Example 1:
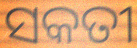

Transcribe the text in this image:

ସକତୀ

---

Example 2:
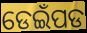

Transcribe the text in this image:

ଡେଇଁପଡ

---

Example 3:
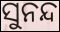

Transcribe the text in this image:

ସୁନନ୍ଦ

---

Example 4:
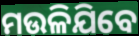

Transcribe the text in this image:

ମଉଳିଯିବେ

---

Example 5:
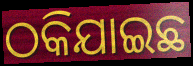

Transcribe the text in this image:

ଠକିଯାଇଛ